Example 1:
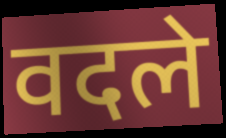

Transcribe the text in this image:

वदले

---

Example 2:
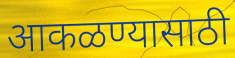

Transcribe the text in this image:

आकळण्यासाठी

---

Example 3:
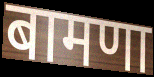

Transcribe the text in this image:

बामणा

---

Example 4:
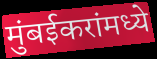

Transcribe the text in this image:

मुंबईकरांमध्ये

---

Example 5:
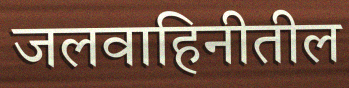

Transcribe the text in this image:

जलवाहिनीतील